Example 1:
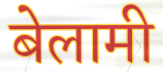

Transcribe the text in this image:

बेलामी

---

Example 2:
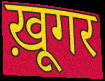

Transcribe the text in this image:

ख़ूगर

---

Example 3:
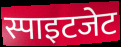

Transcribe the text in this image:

स्पाइटजेट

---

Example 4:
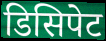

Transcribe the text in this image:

डिसिपेट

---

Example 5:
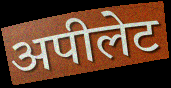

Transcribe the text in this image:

अपीलेट